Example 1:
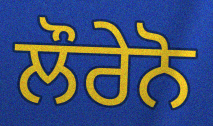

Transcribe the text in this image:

ਲੌਰੇਨੋ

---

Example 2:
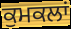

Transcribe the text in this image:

ਕੁਮਕਲਾਂ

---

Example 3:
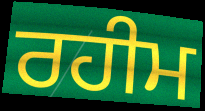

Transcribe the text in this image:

ਰਹੀਮ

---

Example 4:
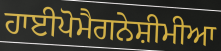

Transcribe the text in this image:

ਹਾਈਪੋਮੈਗਨੇਸ਼ੀਮੀਆ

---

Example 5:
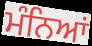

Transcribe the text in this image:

ਮੰਨਿਆਂ